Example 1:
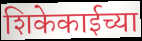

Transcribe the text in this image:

शिकेकाईच्या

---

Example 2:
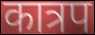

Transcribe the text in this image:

कात्रप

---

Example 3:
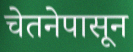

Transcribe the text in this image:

चेतनेपासून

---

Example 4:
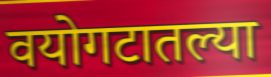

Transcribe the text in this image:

वयोगटातल्या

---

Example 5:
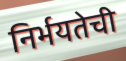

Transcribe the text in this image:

निर्भयतेची